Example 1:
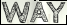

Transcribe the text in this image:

WAY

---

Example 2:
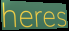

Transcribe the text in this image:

heres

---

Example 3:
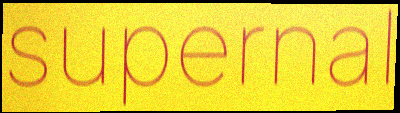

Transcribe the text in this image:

supernal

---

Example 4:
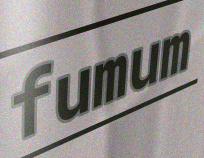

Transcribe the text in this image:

fumum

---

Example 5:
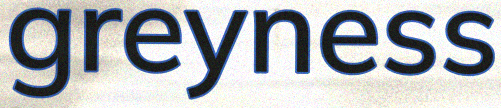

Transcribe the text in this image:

greyness